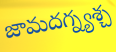
జామదగ్న్యశ్చ